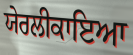
ਯੇਰਲੀਕਾਇਆ